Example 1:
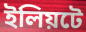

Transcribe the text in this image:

ইলিয়টে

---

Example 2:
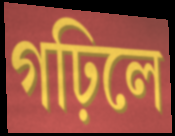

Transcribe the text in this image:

গঢ়িলে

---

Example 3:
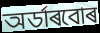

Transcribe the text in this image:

অৰ্ডাৰবোৰ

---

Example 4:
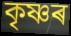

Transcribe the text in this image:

কৃষ্ণৰ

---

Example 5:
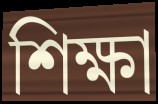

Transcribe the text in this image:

শিক্ষা